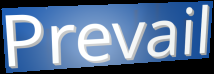
Prevail